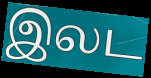
இலட